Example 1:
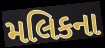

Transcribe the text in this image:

મલિકના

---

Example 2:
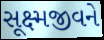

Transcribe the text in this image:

સૂક્ષ્મજીવને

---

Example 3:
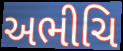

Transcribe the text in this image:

અભીચિ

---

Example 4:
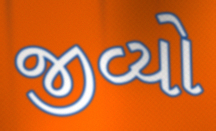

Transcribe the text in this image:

જીવ્યો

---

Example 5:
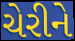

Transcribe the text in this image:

ચેરીને